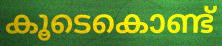
കൂടെകൊണ്ട്